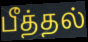
பீத்தல்